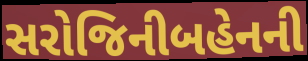
સરોજિનીબહેનની